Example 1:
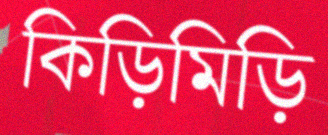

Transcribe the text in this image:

কিড়িমিড়ি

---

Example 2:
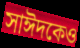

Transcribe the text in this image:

সাঈদকেও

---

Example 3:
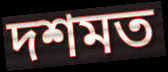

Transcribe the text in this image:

দশমত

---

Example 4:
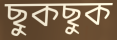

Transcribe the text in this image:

ছুকছুক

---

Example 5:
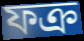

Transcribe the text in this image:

ফক্র